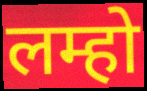
लम्हो